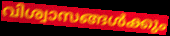
വിശ്വാസങ്ങൾക്കും